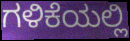
ಗಳಿಕೆಯಲ್ಲಿ